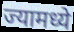
ज्यामध्ये